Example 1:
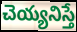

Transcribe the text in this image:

చెయ్యనిస్తే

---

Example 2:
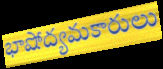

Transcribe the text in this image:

భాషోద్యమకారులు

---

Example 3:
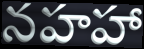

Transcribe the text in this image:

నహహా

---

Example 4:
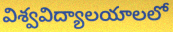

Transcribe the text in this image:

విశ్వవిద్యాలయాలలో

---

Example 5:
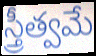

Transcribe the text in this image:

స్త్రీత్వమే